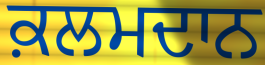
ਕ਼ਲਮਦਾਨ